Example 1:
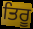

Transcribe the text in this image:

ਤਿਰੂ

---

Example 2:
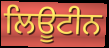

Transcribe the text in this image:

ਲਿਊਟੀਨ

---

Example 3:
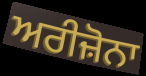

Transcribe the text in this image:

ਅਰੀਜ਼ੋਨਾ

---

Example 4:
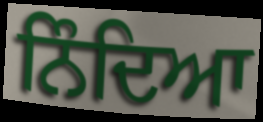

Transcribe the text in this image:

ਨਿੰਦਿਆ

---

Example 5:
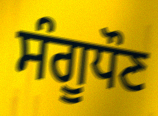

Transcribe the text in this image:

ਸੰਗੂਧੌਣ